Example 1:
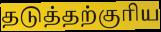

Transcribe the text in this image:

தடுத்தற்குரிய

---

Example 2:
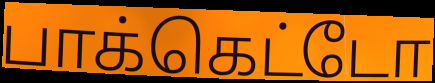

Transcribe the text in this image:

பாக்கெட்டோ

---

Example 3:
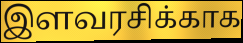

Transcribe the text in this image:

இளவரசிக்காக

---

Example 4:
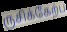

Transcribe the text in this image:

ருசிக்கேற்ப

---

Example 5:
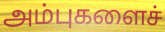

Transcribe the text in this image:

அம்புகளைச்